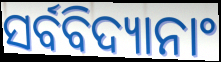
ସର୍ବବିଦ୍ୟାନାଂ